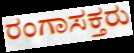
ರಂಗಾಸಕ್ತರು